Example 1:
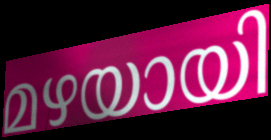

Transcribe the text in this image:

മഴയായി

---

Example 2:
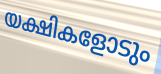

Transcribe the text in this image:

യക്ഷികളോടും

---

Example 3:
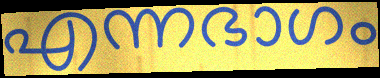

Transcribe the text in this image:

എന്നഭാഗം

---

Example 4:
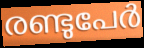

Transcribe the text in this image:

രണ്ടുപേർ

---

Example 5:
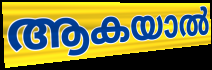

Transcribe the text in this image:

ആകയാൽ